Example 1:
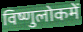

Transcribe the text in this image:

विष्णुलोकमें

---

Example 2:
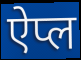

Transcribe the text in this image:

ऐप्ल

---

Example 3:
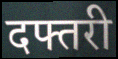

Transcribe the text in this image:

दफ्तरी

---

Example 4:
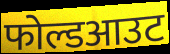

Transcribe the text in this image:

फोल्डआउट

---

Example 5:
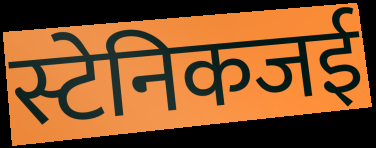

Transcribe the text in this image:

स्टेनिकजई